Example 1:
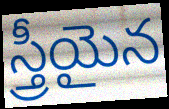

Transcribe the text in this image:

స్త్రీయైన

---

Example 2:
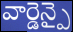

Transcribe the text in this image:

వార్డెన్పై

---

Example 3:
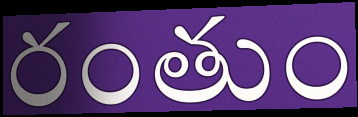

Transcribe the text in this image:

రంతుం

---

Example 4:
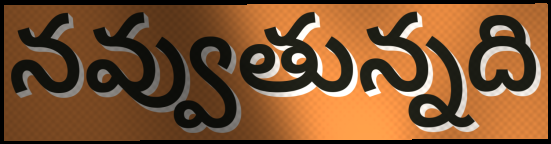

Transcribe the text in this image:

నవ్వుతున్నది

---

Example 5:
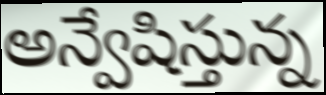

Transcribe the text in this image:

అన్వేషిస్తున్న